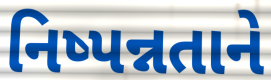
નિષ્પન્નતાને